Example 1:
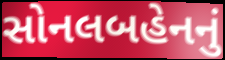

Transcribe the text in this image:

સોનલબહેનનું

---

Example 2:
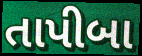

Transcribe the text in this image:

તાપીબા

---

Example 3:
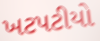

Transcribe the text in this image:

ખટપટીયો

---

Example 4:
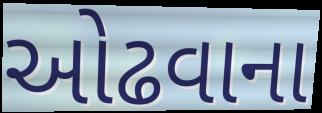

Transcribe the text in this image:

ઓઢવાના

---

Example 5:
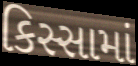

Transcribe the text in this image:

કિસ્સામાં